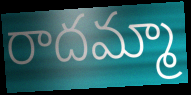
రాదమ్మా